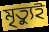
মৃত্যুই